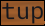
tup